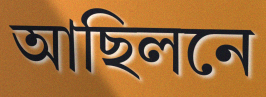
আছিলনে